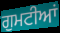
ਗੁਮਟੀਆਂ